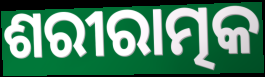
ଶରୀରାତ୍ମକ